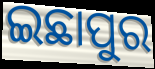
ଇଛାପୁର